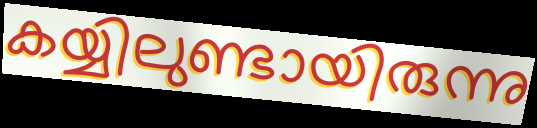
കയ്യിലുണ്ടായിരുന്നു